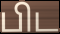
பிட